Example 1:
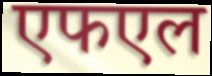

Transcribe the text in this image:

एफएल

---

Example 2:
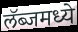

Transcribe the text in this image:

लॅब्जमध्ये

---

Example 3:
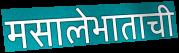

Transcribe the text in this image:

मसालेभाताची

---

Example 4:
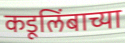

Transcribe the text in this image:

कडूलिंबाच्या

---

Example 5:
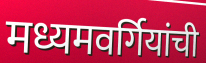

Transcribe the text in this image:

मध्यमवर्गियांची